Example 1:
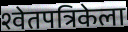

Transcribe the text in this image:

श्वेतपत्रिकेला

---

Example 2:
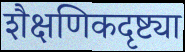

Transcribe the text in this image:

शैक्षणिकदृष्ट्या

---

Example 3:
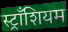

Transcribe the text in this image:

स्ट्राँशियम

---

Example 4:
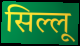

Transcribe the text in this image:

सिल्लू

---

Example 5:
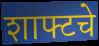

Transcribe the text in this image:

शाफ्टचे